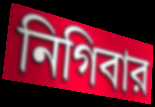
নিগিবার